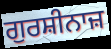
ਗੁਰਸ਼ੀਨਾਜ਼